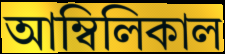
আম্বিলিকাল